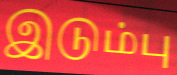
இடும்பு